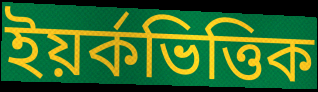
ইয়র্কভিত্তিক